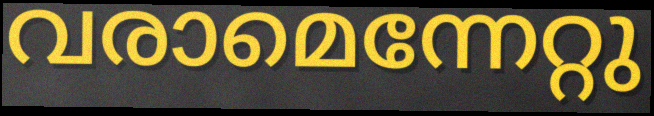
വരാമെന്നേറ്റു